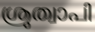
ശ്രുത്വാപി